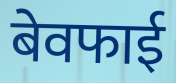
बेवफाई